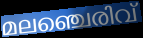
മലഞ്ചെരിവ്